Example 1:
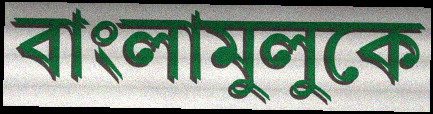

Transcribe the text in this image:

বাংলামুলুকে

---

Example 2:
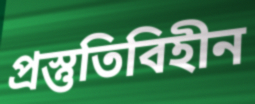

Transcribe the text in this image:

প্রস্তুতিবিহীন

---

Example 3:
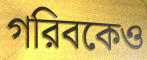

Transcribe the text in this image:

গরিবকেও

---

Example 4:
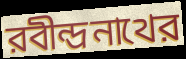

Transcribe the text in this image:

রবীন্দ্রনাথের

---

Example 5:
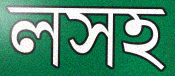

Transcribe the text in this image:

লসহ